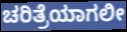
ಚರಿತ್ರೆಯಾಗಲೀ